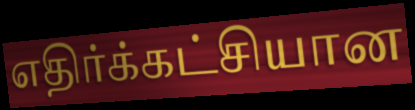
எதிர்க்கட்சியான